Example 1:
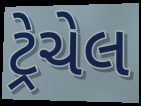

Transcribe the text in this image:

ટ્રેચેલ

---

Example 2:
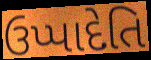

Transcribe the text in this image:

ઉપ્પાદેતિ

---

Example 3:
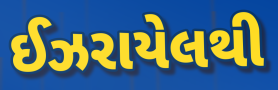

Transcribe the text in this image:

ઈઝરાયેલથી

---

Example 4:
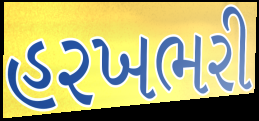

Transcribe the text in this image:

હરખભરી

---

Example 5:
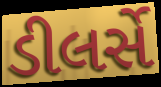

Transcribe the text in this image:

ડીલર્સે